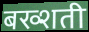
बख्शती